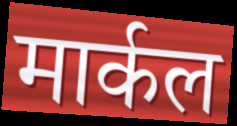
मार्कल